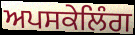
ਅਪਸਕੇਲਿੰਗ